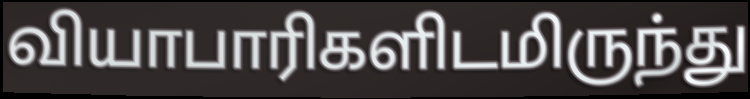
வியாபாரிகளிடமிருந்து